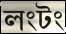
লংটং